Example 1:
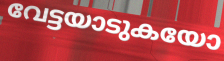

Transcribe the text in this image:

വേട്ടയാടുകയോ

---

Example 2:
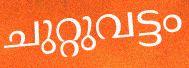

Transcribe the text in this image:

ചുറ്റുവട്ടം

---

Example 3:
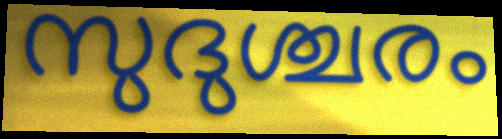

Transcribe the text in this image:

സുദുശ്ചരം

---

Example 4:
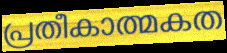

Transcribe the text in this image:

പ്രതീകാത്മകത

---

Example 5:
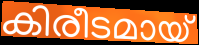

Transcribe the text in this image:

കിരീടമായ്